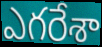
ఎగరేశా